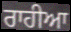
ਰਾਹੀਆ